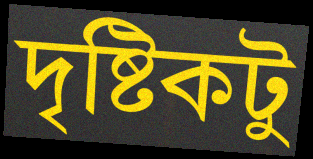
দৃষ্টিকটু